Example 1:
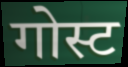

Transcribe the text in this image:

गोस्ट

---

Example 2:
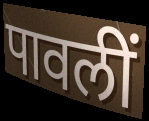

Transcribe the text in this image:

पावलीं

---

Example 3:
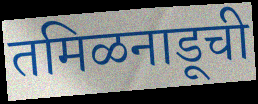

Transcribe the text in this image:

तमिळनाडूची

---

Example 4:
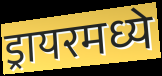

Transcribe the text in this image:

ड्रायरमध्ये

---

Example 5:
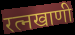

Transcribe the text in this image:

रत्नखाणी